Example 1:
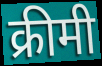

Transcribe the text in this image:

क्रीमी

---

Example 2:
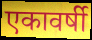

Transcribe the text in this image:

एकावर्षी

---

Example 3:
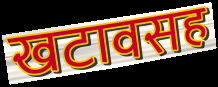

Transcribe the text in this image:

खटावसह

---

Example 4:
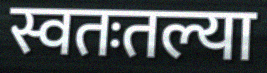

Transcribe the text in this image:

स्वतःतल्या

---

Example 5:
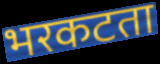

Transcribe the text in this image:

भरकटता